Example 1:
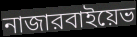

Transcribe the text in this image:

নাজারবাইয়েভ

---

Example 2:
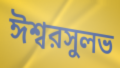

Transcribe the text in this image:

ঈশ্বরসুলভ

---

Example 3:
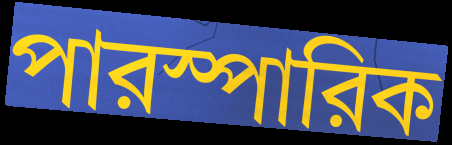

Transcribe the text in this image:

পারস্পারিক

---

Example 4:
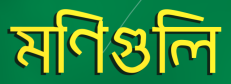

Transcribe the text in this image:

মণিগুলি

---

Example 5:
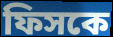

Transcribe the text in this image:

ফিসকে